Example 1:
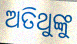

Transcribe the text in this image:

ଅତିଥୁଙ୍କୁ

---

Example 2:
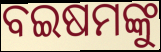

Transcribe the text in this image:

ବଇଷମଙ୍କୁ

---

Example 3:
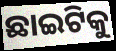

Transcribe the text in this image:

ଛାଇଟିକୁ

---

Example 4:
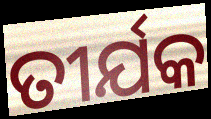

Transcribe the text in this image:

ତୀର୍ଯକ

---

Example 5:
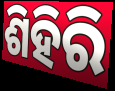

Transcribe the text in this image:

ଶିହିରି